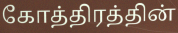
கோத்திரத்தின்